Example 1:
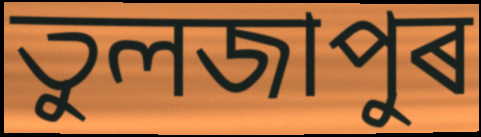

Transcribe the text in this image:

তুলজাপুৰ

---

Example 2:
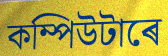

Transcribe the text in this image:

কম্পিউটাৰে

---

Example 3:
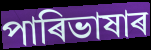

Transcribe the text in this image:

পাৰিভাষাৰ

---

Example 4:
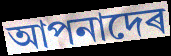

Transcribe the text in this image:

আপনাদেৰ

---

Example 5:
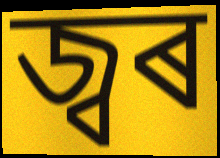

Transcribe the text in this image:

জ্বৰ